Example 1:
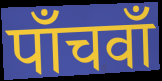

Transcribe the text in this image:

पाँचवाँ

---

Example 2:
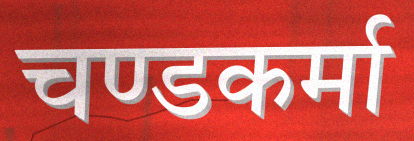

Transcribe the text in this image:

चण्डकर्मा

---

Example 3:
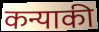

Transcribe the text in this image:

कन्याकी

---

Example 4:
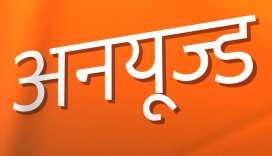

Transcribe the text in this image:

अनयूज्ड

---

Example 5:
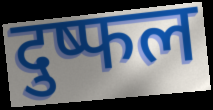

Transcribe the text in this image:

दुष्फल